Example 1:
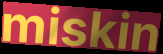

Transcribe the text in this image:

miskin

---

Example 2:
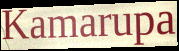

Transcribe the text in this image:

Kamarupa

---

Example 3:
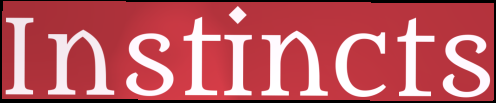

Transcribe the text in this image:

Instincts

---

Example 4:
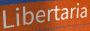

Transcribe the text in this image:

Libertaria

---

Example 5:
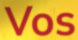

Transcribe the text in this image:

Vos